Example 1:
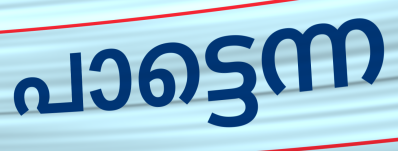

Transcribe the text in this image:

പാട്ടെന്ന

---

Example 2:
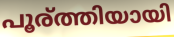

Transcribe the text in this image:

പൂര്ത്തിയായി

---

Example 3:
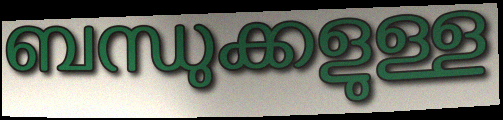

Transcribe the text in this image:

ബന്ധുക്കളുള്ള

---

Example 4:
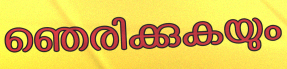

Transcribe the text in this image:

ഞെരിക്കുകയും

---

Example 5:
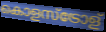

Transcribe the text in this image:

കൊളസ്ട്രോള്